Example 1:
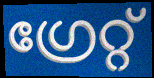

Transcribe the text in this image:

ഗ്രേറ്റ്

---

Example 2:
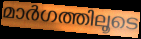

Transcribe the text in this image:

മാർഗത്തിലൂടെ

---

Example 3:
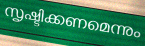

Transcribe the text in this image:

സൃഷ്ടിക്കണമെന്നും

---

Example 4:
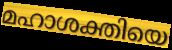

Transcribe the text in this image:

മഹാശക്തിയെ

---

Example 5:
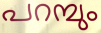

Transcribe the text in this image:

പറമ്പും